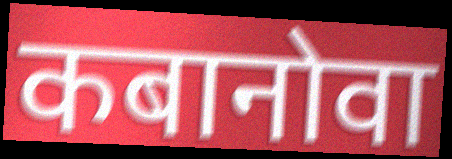
कबानोवा